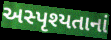
અસ્પૃશ્યતાનાં